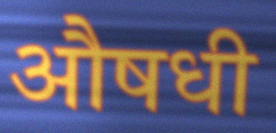
औषधी